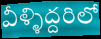
వీళ్ళిద్దరిలో